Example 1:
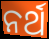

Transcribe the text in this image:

ନର୍ଥ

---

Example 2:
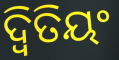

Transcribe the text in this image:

ଦ୍ୱିତିୟଂ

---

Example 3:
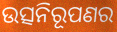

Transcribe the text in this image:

ଉତ୍ସନିରୂପଣର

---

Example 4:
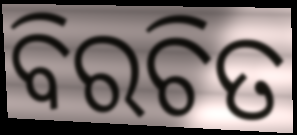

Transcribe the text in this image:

ବିରଚିତ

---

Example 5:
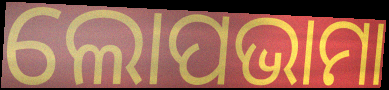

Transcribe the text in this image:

ଲୋପଭାମା